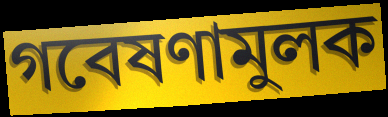
গবেষণামুলক